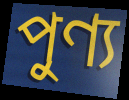
পুণ্য